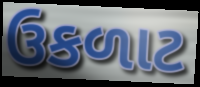
ઉકળાટ